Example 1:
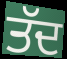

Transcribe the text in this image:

ਤੱਦ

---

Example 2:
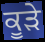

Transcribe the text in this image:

ਕੂਡ਼ੇ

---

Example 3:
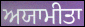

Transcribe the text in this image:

ਅਯਾਮੀਤਾ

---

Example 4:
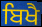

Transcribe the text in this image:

ਬਿਖੈ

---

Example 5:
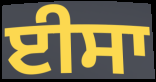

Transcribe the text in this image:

ਈਸਾ